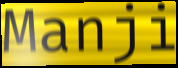
Manji